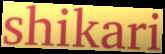
shikari